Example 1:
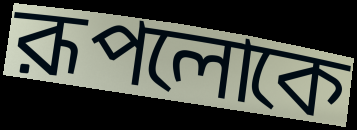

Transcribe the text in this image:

রূপলোকে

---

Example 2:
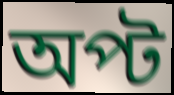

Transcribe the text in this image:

অপ্ট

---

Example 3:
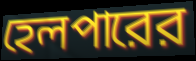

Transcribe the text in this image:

হেলপারের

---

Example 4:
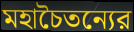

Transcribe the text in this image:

মহাচৈতন্যের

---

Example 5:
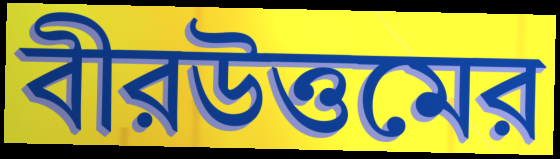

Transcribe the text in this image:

বীরউত্তমের